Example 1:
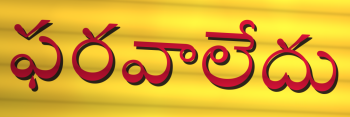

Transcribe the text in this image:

ఫరవాలేదు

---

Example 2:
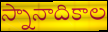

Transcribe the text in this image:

స్నానాదికాల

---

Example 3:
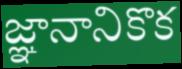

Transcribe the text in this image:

జ్ఞానానికొక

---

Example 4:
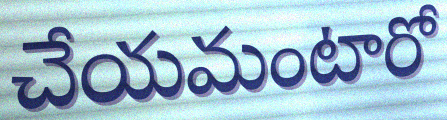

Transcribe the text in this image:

చేయమంటారో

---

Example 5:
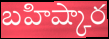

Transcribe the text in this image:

బహిష్కార